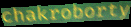
chakroborty